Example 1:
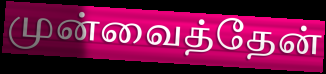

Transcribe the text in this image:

முன்வைத்தேன்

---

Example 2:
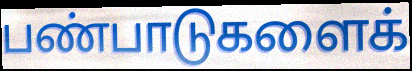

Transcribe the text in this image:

பண்பாடுகளைக்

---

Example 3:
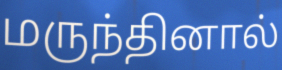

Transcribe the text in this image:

மருந்தினால்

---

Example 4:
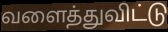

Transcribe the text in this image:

வளைத்துவிட்டு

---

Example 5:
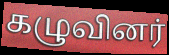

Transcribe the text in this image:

கழுவினர்